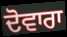
ਦੋਵਾਰਾ